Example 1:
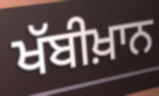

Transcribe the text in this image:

ਖੱਬੀਖ਼ਾਨ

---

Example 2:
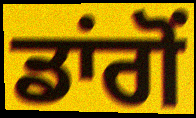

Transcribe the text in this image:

ਡਾਂਗੋਂ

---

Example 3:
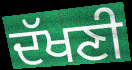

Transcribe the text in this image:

ਦੱਖਣੀ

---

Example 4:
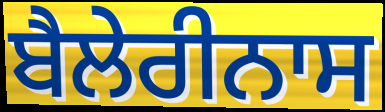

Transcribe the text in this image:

ਬੈਲੇਰੀਨਾਸ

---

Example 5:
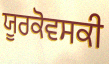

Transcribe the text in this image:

ਯੂਰਕੋਵਸਕੀ